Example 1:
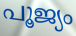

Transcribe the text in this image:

പൂജ്യം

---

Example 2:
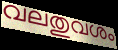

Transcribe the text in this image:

വലതുവശം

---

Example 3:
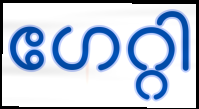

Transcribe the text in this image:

ഗേറ്റി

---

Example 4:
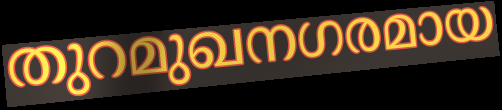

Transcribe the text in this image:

തുറമുഖനഗരമായ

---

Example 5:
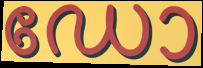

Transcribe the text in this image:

ഡോ